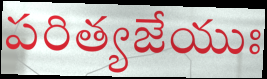
పరిత్యజేయుః